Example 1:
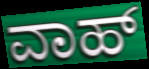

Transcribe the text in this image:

ವಾಹ್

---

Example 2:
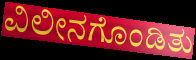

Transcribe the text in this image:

ವಿಲೀನಗೊಂಡಿತು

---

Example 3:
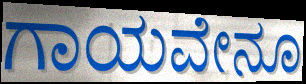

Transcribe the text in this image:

ಗಾಯವೇನೂ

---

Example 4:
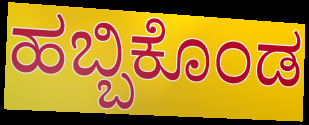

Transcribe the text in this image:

ಹಬ್ಬಿಕೊಂಡ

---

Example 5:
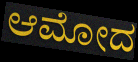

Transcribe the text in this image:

ಆಮೋದ